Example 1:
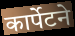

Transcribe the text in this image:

कार्पेटने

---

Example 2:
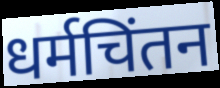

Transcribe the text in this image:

धर्मचिंतन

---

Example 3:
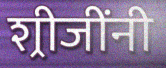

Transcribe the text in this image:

श्रीजींनी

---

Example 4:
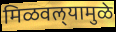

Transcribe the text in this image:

मिळवल्यामुळे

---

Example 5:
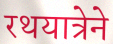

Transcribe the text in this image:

रथयात्रेने